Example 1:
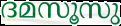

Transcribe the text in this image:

ദമസൂസു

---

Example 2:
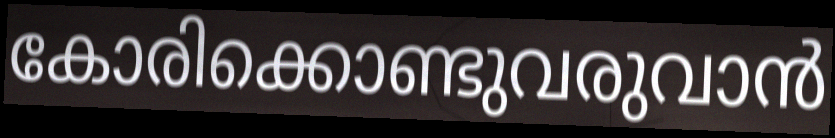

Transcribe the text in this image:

കോരിക്കൊണ്ടുവരുവാൻ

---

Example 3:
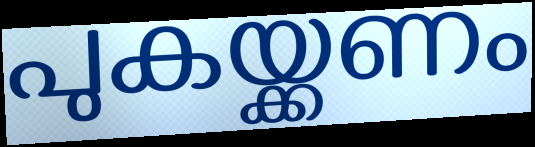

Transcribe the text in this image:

പുകയ്ക്കണം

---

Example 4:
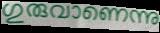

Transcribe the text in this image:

ഗുരുവാണെന്നു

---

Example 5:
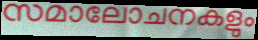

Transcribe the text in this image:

സമാലോചനകളും